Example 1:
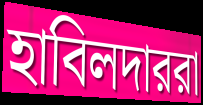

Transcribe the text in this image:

হাবিলদাররা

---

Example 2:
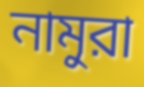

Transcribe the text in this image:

নামুরা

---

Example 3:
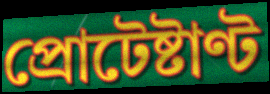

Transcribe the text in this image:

প্রোটেষ্টাণ্ট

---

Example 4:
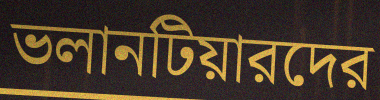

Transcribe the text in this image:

ভলানটিয়ারদের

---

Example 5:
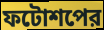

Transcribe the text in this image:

ফটোশপের